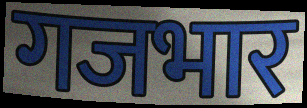
गजभार